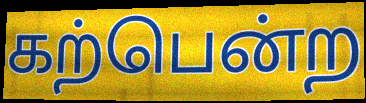
கற்பென்ற